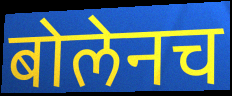
बोलेनच